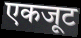
एकजूट